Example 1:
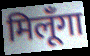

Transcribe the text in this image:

मिलूँगा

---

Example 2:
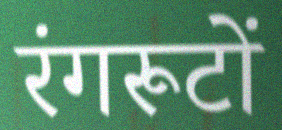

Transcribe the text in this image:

रंगरूटों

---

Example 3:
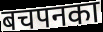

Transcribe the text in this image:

बचपनका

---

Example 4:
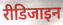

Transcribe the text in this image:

रीडिजाइन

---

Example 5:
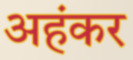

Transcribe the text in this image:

अहंकर